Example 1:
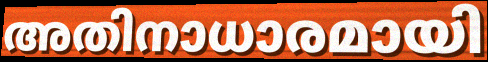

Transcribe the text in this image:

അതിനാധാരമായി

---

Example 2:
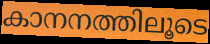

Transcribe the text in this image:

കാനനത്തിലൂടെ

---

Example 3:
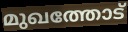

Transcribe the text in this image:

മുഖത്തോട്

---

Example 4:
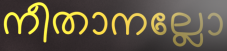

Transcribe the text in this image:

നീതാനല്ലോ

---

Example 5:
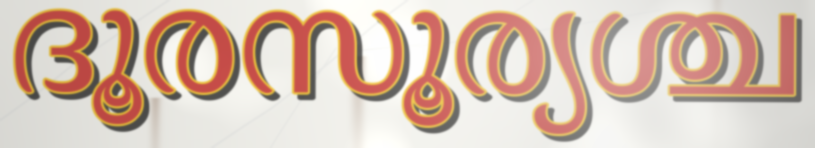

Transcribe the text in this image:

ദൂരസൂര്യശ്ച